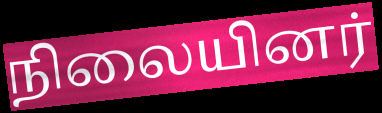
நிலையினர்